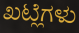
ಖಟ್ಲೆಗಳು